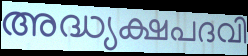
അദ്ധ്യക്ഷപദവി